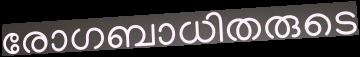
രോഗബാധിതരുടെ